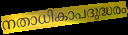
നതാധികാപദുദ്ധരം